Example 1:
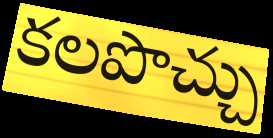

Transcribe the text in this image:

కలపొచ్చు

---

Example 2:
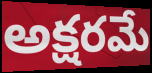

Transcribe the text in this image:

అక్షరమే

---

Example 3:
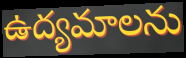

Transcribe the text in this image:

ఉద్యమాలను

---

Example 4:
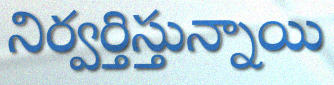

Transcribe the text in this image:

నిర్వర్తిస్తున్నాయి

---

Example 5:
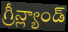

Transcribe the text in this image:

గ్రీన్ల్యాండ్